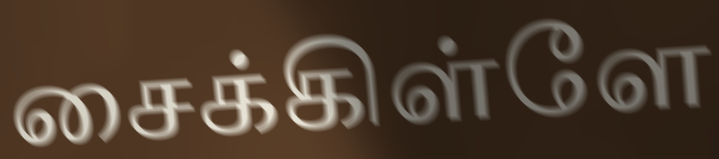
சைக்கிள்ளே